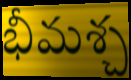
భీమశ్చ